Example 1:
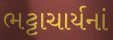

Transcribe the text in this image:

ભટ્ટાચાર્યનાં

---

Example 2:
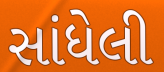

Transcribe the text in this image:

સાંધેલી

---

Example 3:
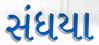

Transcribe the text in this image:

સંધયા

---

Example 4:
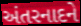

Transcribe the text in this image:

અંતરનાદને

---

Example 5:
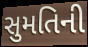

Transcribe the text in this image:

સુમતિની